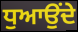
ਧੁਆਉਂਦੇ